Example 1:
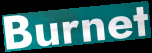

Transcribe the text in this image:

Burnet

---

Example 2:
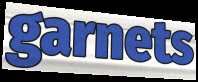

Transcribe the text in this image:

garnets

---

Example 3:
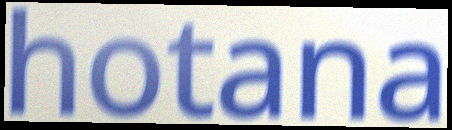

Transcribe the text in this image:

hotana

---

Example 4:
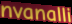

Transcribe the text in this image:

nvanalli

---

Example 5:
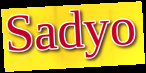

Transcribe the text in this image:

Sadyo